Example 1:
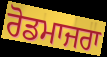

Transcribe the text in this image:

ਰੋਡਮਾਜਰਾ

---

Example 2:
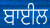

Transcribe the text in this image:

ਬਾਈਲ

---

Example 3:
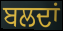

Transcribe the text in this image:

ਬਲਦਾਂ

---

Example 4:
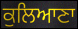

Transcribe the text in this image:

ਕੁਲਿਆਣਾ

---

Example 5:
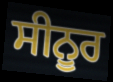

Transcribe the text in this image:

ਸੀਨੂਰ